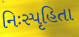
નિઃસ્પૃહિતા